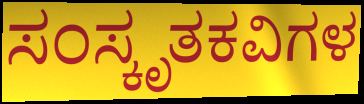
ಸಂಸ್ಕೃತಕವಿಗಳ